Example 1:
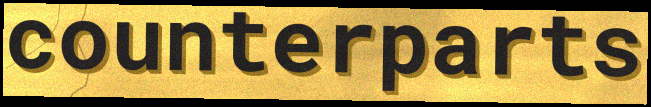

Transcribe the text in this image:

counterparts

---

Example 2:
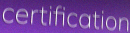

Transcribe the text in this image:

certification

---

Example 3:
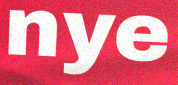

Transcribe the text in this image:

nye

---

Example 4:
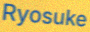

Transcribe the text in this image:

Ryosuke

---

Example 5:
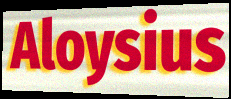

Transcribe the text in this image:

Aloysius